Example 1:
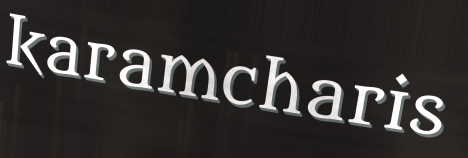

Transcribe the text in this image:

karamcharis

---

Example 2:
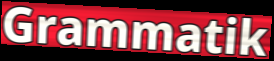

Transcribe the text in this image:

Grammatik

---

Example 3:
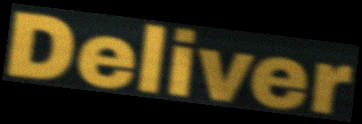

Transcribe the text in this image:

Deliver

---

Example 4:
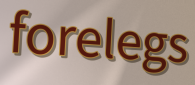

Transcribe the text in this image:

forelegs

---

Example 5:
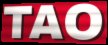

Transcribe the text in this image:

TAO